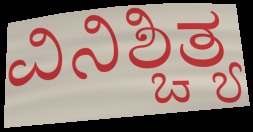
ವಿನಿಶ್ಚಿತ್ಯ